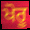
ਖੋਰੂ